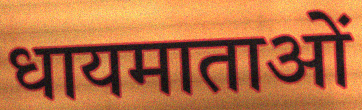
धायमाताओं